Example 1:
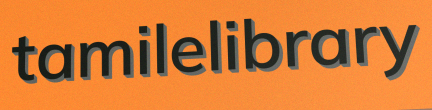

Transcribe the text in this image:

tamilelibrary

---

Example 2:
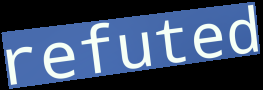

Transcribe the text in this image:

refuted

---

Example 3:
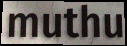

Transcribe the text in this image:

muthu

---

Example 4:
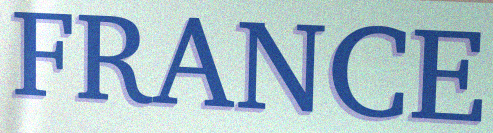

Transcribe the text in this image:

FRANCE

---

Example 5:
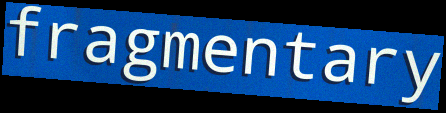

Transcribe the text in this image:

fragmentary